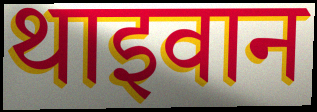
थाइवान